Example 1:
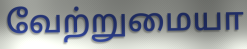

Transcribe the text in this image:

வேற்றுமையா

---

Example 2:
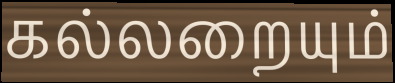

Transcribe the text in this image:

கல்லறையும்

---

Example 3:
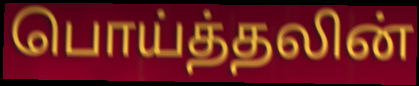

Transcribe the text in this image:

பொய்த்தலின்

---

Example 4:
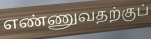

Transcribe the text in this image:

எண்ணுவதற்குப்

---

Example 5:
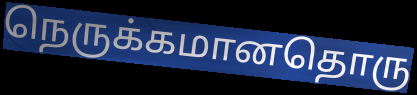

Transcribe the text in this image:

நெருக்கமானதொரு